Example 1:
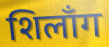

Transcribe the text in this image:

शिलाँग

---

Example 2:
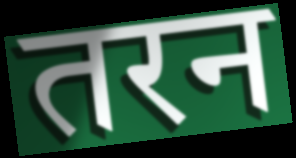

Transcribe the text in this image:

तरन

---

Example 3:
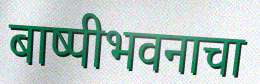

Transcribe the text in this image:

बाष्पीभवनाचा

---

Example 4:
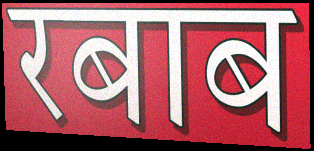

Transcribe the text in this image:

रबाब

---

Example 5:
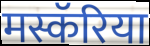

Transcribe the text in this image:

मस्कॅरिया